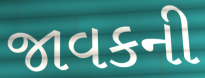
જાવકની